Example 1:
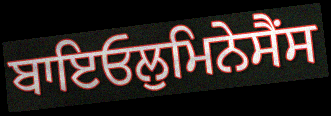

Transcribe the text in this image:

ਬਾਇਓਲੁਮਿਨੇਸੈਂਸ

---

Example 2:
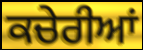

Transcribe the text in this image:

ਕਚੇਰੀਆਂ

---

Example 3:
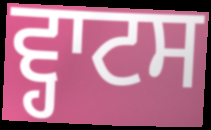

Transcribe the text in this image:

ਵ੍ਹਾਟਸ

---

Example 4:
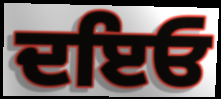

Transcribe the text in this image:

ਦਇਓ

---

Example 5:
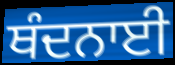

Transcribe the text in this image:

ਥੰਦਨਾਈ